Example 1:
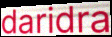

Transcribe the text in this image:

daridra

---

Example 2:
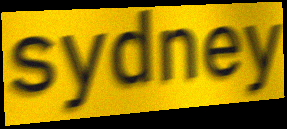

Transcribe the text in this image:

sydney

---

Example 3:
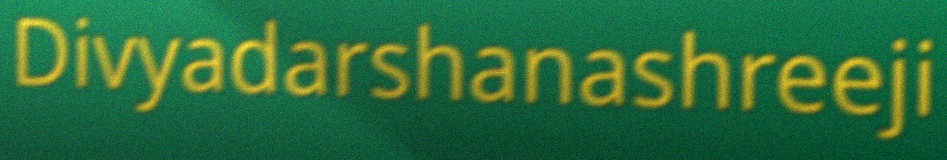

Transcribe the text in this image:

Divyadarshanashreeji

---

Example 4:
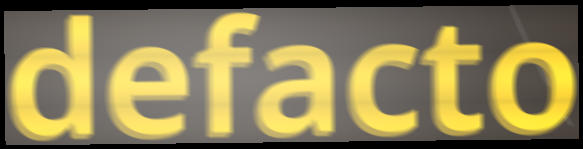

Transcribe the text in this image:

defacto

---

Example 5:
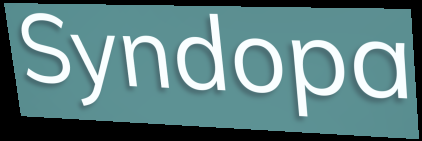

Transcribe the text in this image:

Syndopa